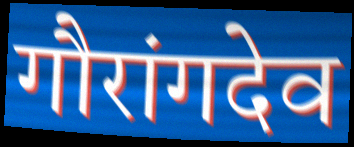
गौरांगदेव